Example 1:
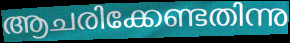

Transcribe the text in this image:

ആചരിക്കേണ്ടതിന്നു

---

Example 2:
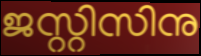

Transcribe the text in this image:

ജസ്റ്റിസിനു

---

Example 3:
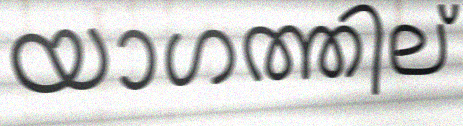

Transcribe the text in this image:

യാഗത്തില്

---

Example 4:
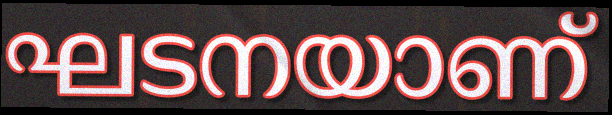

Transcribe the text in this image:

ഘടനയാണ്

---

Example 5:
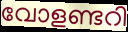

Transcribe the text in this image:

വോളണ്ടറി